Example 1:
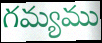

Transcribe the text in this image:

గమ్యము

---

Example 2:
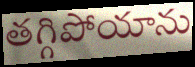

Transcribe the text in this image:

తగ్గిపోయాను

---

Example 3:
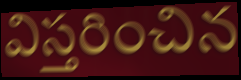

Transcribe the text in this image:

విస్తరించిన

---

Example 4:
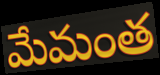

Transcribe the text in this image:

మేమంత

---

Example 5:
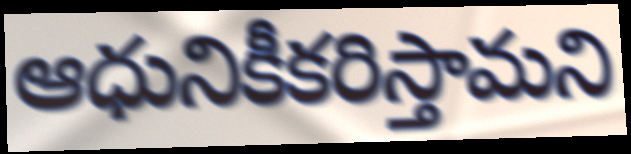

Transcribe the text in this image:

ఆధునికీకరిస్తామని